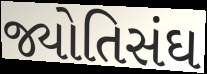
જ્યોતિસંઘ